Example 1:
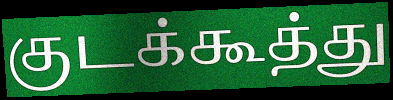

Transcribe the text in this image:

குடக்கூத்து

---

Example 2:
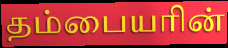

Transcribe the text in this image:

தம்பையரின்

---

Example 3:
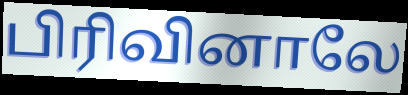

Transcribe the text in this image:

பிரிவினாலே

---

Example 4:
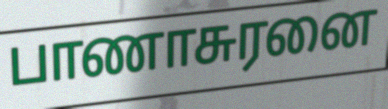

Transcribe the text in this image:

பாணாசுரனை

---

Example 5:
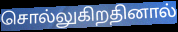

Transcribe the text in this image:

சொல்லுகிறதினால்